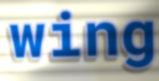
wing